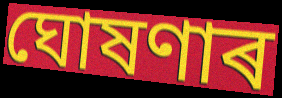
ঘোষণাৰ